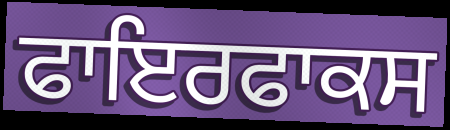
ਫਾਇਰਫਾਕਸ